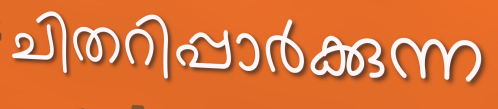
ചിതറിപ്പാർക്കുന്ന